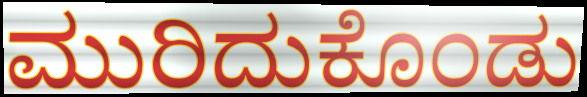
ಮುರಿದುಕೊಂಡು